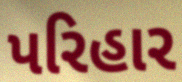
પરિહાર